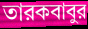
তারকবাবুর